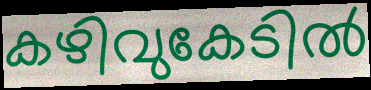
കഴിവുകേടിൽ